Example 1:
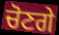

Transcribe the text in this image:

ਚੋਣਗੇ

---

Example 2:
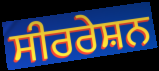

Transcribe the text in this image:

ਸੀਰਰੇਸ਼ਨ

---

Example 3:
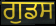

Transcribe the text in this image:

ਗੁਡਸ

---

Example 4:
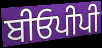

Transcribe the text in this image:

ਬੀਓਪੀਪੀ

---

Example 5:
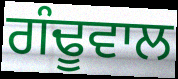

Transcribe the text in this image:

ਗੰਢੂਵਾਲ